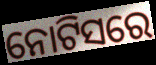
ନୋଟିସରେ